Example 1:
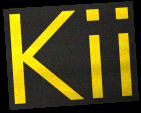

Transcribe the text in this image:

Kii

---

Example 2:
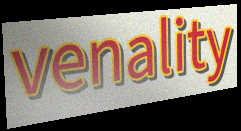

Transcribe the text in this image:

venality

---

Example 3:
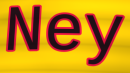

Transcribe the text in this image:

Ney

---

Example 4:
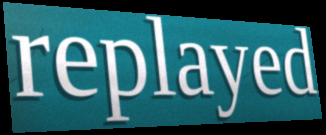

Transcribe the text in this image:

replayed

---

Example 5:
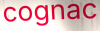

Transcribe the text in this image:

cognac